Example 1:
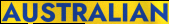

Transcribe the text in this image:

AUSTRALIAN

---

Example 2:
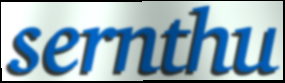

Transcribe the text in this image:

sernthu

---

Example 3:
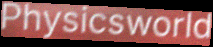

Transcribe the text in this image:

Physicsworld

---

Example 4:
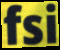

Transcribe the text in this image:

fsi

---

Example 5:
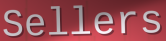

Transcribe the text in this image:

Sellers